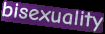
bisexuality